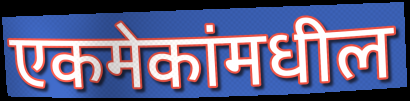
एकमेकांमधील